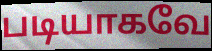
படியாகவே